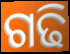
ଗଢି